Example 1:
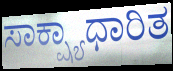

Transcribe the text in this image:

ಸಾಕ್ಷ್ಯಾಧಾರಿತ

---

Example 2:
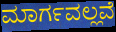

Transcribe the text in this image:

ಮಾರ್ಗವಲ್ಲವೆ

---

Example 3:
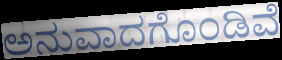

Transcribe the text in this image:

ಅನುವಾದಗೊಂಡಿವೆ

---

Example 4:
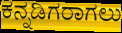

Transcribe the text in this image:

ಕನ್ನಡಿಗರಾಗಲು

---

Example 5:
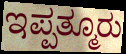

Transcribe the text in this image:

ಇಪ್ಪತ್ಮೂರು